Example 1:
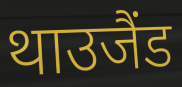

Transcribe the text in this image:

थाउजैंड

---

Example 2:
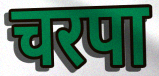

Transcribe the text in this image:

चरपा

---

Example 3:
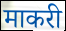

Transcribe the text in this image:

माकरी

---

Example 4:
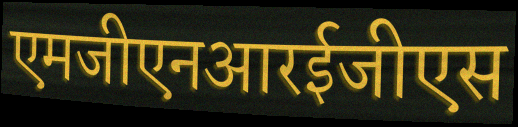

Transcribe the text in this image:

एमजीएनआरईजीएस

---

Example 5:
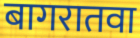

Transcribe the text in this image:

बागरातवा